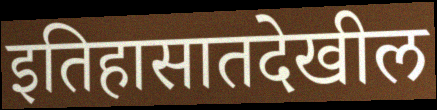
इतिहासातदेखील